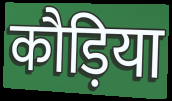
कौड़िया